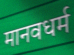
मानवधर्म